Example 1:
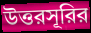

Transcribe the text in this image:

উত্তরসূরির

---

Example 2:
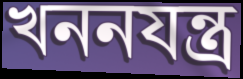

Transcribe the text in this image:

খননযন্ত্র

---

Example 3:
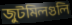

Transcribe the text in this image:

জুটমিলগুলি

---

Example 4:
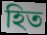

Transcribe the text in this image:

হিত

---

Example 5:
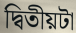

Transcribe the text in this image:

দ্বিতীয়টা